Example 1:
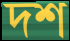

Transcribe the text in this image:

দশ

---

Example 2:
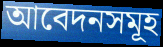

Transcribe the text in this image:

আবেদনসমূহ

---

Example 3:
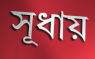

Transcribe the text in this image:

সূধায়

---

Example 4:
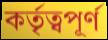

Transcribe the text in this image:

কর্তৃত্বপূর্ণ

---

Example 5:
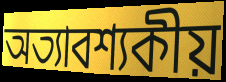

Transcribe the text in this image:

অত্যাবশ্যকীয়